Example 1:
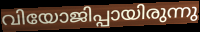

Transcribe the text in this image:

വിയോജിപ്പായിരുന്നു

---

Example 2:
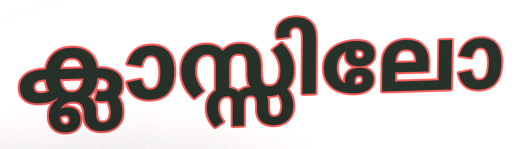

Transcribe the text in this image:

ക്ലാസ്സിലോ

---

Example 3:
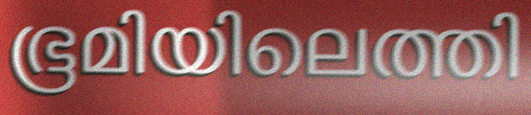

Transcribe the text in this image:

ഭൂമിയിലെത്തി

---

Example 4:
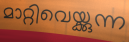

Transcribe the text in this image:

മാറ്റിവെയ്ക്കുന്ന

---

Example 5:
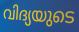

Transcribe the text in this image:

വിദ്യയുടെ